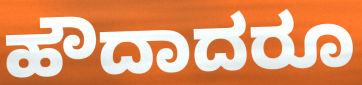
ಹೌದಾದರೂ